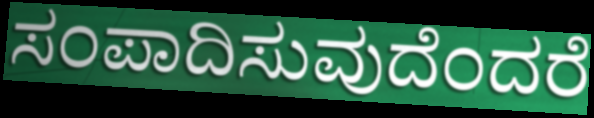
ಸಂಪಾದಿಸುವುದೆಂದರೆ